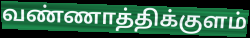
வண்ணாத்திக்குளம்